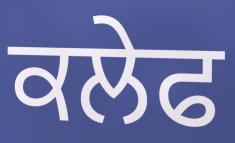
ਕਲੇਫ